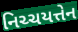
નિચ્ચયત્તેન